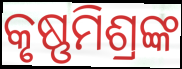
କୃଷ୍ଣମିଶ୍ରଙ୍କ